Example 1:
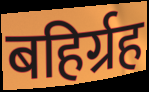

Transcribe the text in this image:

बहिर्ग्रह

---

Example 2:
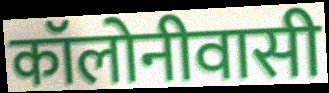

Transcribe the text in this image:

कॉलोनीवासी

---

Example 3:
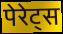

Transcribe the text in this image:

पेरेट्स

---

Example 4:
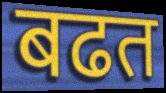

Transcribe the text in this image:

बढत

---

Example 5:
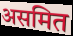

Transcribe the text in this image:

असमित